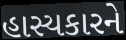
હાસ્યકારને